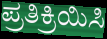
ಪ್ರತಿಕ್ರಿಯಿಸಿ